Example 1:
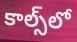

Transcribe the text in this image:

కాల్స్‌లో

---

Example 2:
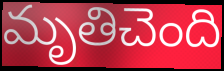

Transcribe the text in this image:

మృతిచెంది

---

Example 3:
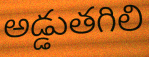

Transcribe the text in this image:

అడ్డుతగిలి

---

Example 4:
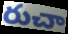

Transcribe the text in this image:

రుచా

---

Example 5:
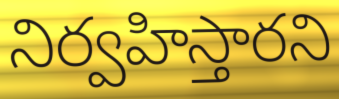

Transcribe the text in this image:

నిర్వహిస్తారని